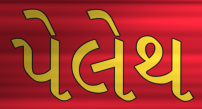
પેલેથ